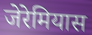
जेरेमियास